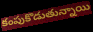
కంపుకొడుతున్నాయి